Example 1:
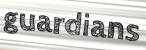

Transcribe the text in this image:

guardians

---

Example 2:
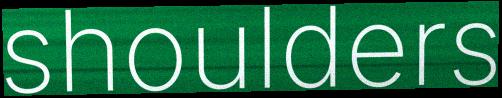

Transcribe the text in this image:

shoulders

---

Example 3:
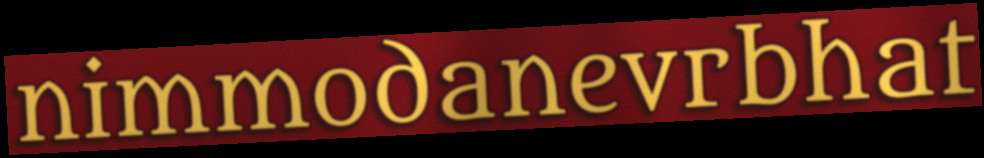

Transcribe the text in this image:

nimmodanevrbhat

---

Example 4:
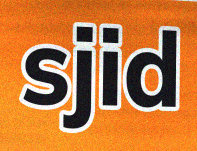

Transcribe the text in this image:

sjid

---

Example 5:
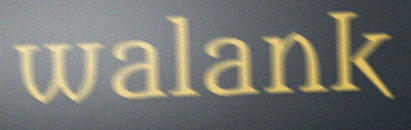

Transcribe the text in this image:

walank